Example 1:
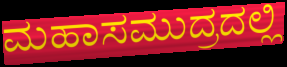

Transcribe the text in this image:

ಮಹಾಸಮುದ್ರದಲ್ಲಿ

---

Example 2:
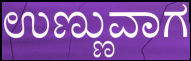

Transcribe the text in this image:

ಉಣ್ಣುವಾಗ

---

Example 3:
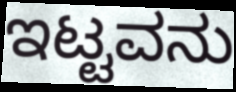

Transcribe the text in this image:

ಇಟ್ಟವನು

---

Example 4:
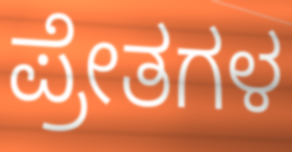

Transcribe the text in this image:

ಪ್ರೇತಗಳ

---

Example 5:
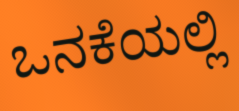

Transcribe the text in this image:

ಒನಕೆಯಲ್ಲಿ